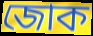
জোক